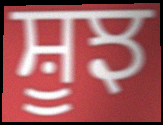
ਸ਼ੂਝ